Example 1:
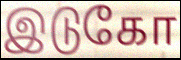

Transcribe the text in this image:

இடுகோ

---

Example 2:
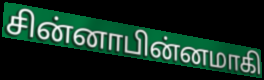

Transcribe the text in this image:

சின்னாபின்னமாகி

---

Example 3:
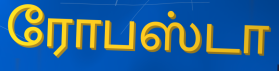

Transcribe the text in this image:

ரோபஸ்டா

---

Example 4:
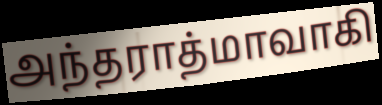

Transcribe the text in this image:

அந்தராத்மாவாகி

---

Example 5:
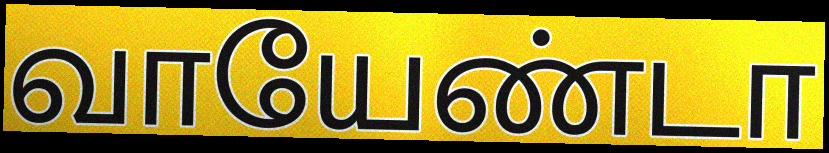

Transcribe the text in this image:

வாயேண்டா